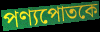
পণ্যপোতকে